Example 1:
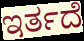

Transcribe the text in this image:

ಇರ್ತದೆ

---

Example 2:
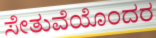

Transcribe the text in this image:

ಸೇತುವೆಯೊಂದರ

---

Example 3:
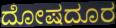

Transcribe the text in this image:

ದೋಷದೂರ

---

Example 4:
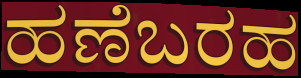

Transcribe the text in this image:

ಹಣೆಬರಹ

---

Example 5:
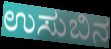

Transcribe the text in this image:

ಉಸುಬಿನ